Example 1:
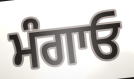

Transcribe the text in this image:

ਮੰਗਾਓ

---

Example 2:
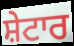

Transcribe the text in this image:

ਸ਼ੇਟਾਰ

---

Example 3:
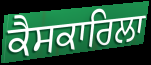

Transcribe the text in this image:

ਕੈਸਕਾਰਿਲਾ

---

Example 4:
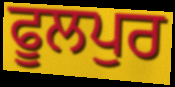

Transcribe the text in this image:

ਫੂਲਪੁਰ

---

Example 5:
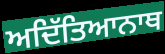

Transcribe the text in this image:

ਅਦਿੱਤਿਆਨਾਥ